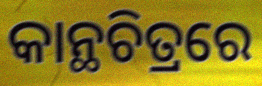
କାନ୍ଥଚିତ୍ରରେ